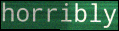
horribly